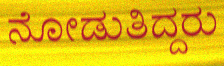
ನೋಡುತಿದ್ದರು